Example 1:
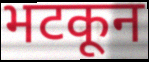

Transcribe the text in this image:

भटकून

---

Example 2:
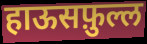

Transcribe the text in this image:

हाऊसफ़ुल्ल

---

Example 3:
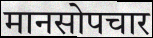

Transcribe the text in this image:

मानसोपचार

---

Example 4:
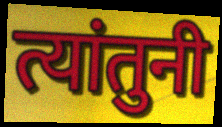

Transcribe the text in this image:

त्यांतुनी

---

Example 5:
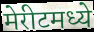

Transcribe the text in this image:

मेरीटमध्ये